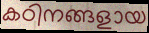
കഠിനങ്ങളായ